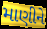
માણીને